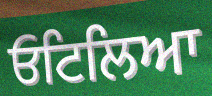
ਓਟਿਲਿਆ